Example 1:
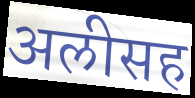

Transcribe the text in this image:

अलीसह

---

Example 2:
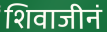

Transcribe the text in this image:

शिवाजीनं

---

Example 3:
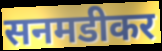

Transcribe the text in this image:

सनमडीकर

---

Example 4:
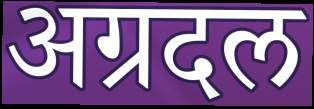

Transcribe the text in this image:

अग्रदल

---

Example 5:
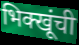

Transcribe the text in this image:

भिक्खूंची